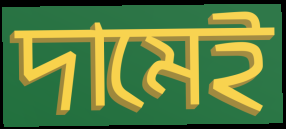
দামেই